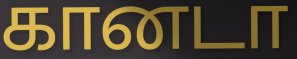
கானடா